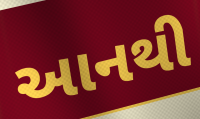
આનથી